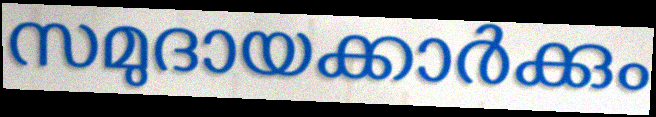
സമുദായക്കാർക്കും